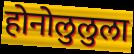
होनोलुलुला